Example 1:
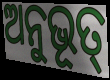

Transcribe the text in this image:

ଅନୁଭୂତ୍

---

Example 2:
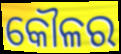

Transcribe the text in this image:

କୌଳର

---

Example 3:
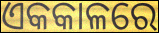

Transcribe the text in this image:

ଏକକାଳରେ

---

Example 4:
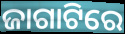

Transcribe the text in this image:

ଜାଗାଟିରେ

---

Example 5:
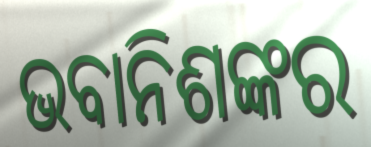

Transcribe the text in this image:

ଭବାନିଶଙ୍କର